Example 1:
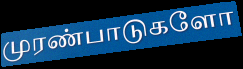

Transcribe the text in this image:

முரண்பாடுகளோ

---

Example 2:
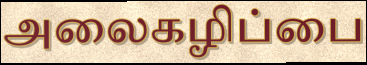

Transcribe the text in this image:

அலைகழிப்பை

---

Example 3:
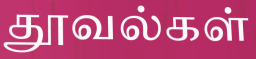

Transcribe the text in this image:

தூவல்கள்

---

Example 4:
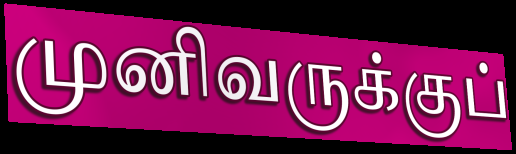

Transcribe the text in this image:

முனிவருக்குப்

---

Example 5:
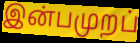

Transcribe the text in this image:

இன்பமுறப்